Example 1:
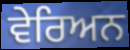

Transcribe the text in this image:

ਵੇਰਿਅਨ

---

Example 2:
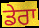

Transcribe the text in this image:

ਡੇਰਾ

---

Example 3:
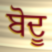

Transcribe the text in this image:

ਬੋਦੂ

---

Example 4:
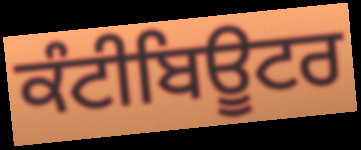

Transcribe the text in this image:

ਕੰਟੀਬਿਊਟਰ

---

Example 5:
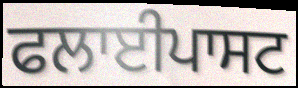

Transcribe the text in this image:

ਫਲਾਈਪਾਸਟ